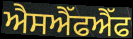
ਐਸਐੱਫਐੱਫ